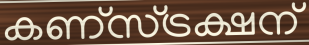
കണ്സ്ട്രക്ഷന്